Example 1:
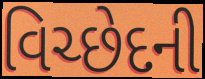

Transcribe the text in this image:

વિચ્છેદની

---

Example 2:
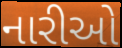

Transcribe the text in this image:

નારીઓ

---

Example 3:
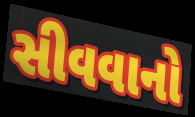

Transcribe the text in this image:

સીવવાનો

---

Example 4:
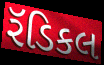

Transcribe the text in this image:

રૅડિકલ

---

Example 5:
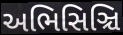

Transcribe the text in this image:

અભિસિઞ્ચિ